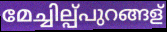
മേച്ചില്പ്പുറങ്ങള്